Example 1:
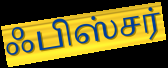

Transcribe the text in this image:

ஃபிஸ்சர்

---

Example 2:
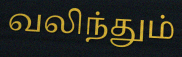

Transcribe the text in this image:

வலிந்தும்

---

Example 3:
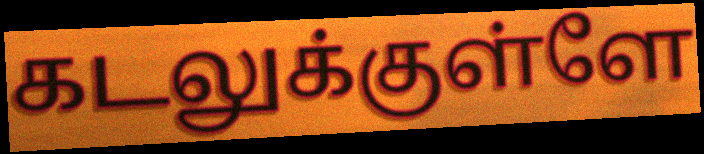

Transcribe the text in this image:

கடலுக்குள்ளே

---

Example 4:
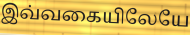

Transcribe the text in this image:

இவ்வகையிலேயே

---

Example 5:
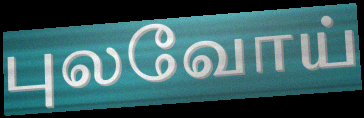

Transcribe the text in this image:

புலவோய்